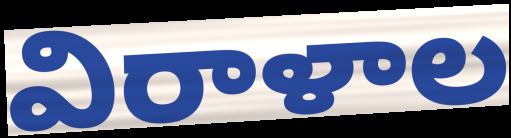
విరాళాల